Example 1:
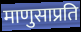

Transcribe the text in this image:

माणुसाप्रति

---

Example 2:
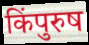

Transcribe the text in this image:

किंपुरुष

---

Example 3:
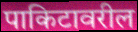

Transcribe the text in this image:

पाकिटावरील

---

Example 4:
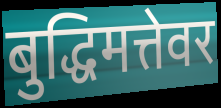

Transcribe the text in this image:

बुद्धिमत्तेवर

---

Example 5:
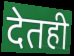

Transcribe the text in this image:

देतही